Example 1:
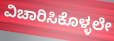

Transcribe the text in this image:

ವಿಚಾರಿಸಿಕೊಳ್ಳಲೇ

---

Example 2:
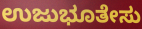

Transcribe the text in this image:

ಉಜುಭೂತೇಸು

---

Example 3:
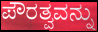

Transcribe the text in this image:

ಪೌರತ್ವವನ್ನು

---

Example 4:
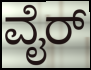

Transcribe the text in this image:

ವೈರ್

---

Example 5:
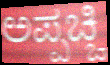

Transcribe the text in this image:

ಅಪ್ಪಚ್ಚಿ